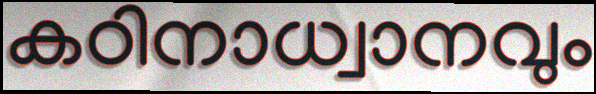
കഠിനാധ്വാനവും